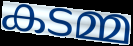
കടമ്മ